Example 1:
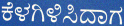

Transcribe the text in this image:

ಕೆಳಗಿಳಿಸಿದಾಗ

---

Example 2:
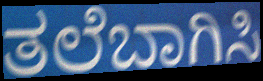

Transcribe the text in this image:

ತಲೆಬಾಗಿಸಿ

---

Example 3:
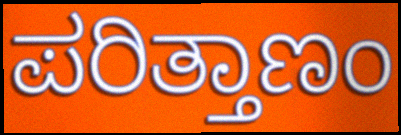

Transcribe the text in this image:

ಪರಿತ್ತಾಣಂ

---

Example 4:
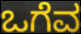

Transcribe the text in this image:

ಒಗೆವ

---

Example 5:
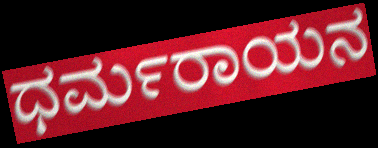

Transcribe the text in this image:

ಧರ್ಮರಾಯನ